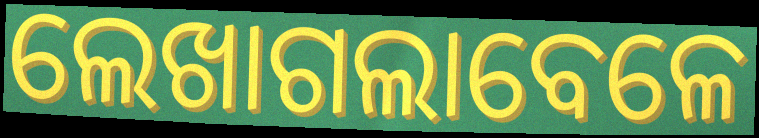
ଲେଖାଗଲାବେଳେ